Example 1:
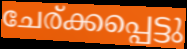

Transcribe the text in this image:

ചേര്ക്കപ്പെട്ടു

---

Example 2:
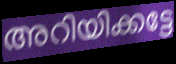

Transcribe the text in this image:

അറിയിക്കട്ടേ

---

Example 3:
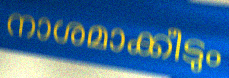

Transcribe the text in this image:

നാശമാക്കീടും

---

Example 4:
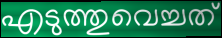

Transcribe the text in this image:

എടുത്തുവെച്ചത്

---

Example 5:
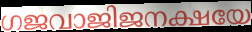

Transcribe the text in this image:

ഗജവാജിജനക്ഷയേ